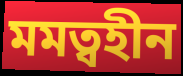
মমত্বহীন